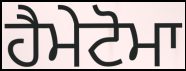
ਹੈਮੇਟੋਮਾ